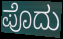
ಪೊದು